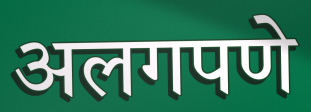
अलगपणे